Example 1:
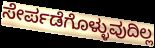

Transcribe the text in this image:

ಸೇರ್ಪಡೆಗೊಳ್ಳುವುದಿಲ್ಲ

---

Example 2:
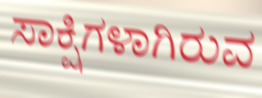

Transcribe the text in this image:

ಸಾಕ್ಷಿಗಳಾಗಿರುವ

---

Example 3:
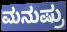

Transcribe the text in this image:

ಮನುಷ್ರು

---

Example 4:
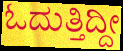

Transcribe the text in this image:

ಓದುತ್ತಿದ್ದೀ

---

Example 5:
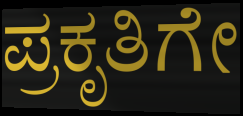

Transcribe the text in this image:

ಪ್ರಕೃತಿಗೇ